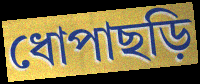
ধোপাছড়ি